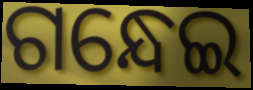
ଗନ୍ଧେଇ